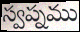
స్వప్నము